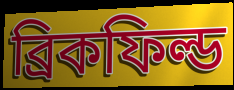
ব্রিকফিল্ড